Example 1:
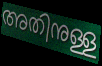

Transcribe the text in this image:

അതിനുള്ള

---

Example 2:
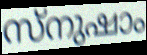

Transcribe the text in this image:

സ്നുഷാം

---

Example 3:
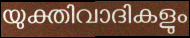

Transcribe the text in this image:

യുക്തിവാദികളും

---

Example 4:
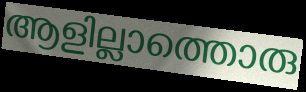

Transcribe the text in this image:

ആളില്ലാത്തൊരു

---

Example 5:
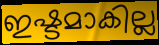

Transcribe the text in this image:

ഇഷ്ടമാകില്ല